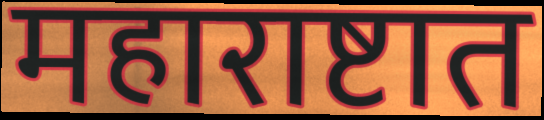
महाराष्टात